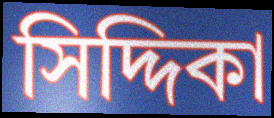
সিদ্দিকা